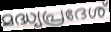
മദ്ധ്യപ്രദേശ്